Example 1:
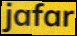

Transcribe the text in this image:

jafar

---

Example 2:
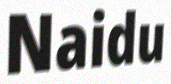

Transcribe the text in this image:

Naidu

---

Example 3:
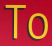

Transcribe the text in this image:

To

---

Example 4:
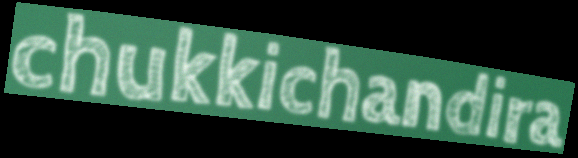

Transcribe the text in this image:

chukkichandira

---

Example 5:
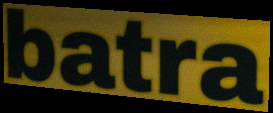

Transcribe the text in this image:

batra